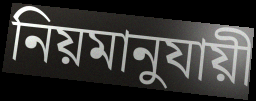
নিয়মানুযায়ী